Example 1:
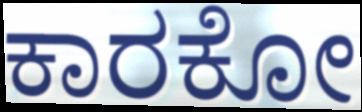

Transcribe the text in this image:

ಕಾರಕೋ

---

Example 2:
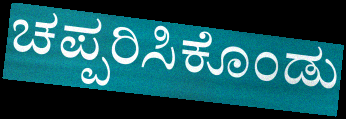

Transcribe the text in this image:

ಚಪ್ಪರಿಸಿಕೊಂಡು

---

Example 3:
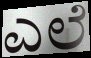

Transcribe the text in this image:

ಎಲೆ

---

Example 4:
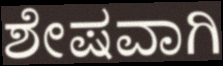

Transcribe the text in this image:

ಶೇಷವಾಗಿ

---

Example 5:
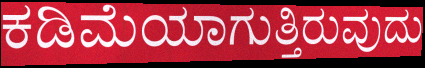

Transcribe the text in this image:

ಕಡಿಮೆಯಾಗುತ್ತಿರುವುದು